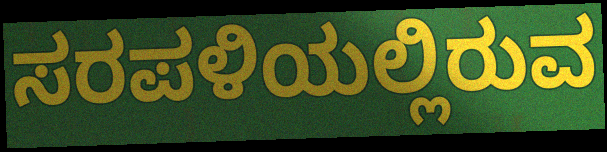
ಸರಪಳಿಯಲ್ಲಿರುವ